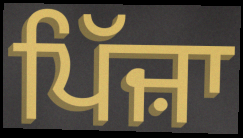
ਪਿੱਜ਼ਾ